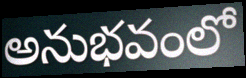
అనుభవంలో